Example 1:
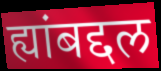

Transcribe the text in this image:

ह्यांबद्दल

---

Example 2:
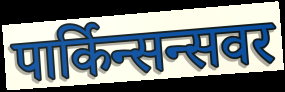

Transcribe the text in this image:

पार्किन्सन्सवर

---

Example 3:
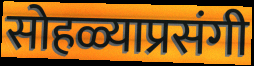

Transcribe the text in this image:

सोहळ्याप्रसंगी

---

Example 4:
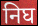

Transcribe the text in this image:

निघ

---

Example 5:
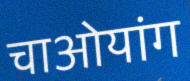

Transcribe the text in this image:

चाओयांग